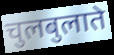
चुलबुलाते